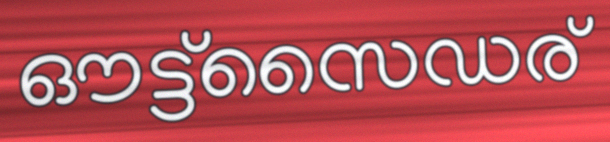
ഔട്ട്സൈഡര്